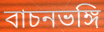
বাচনভঙ্গি